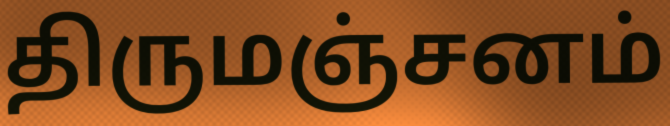
திருமஞ்சனம்